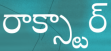
రాక్స్టార్